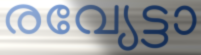
രവ്യേട്ടാ